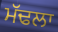
ਮੱਢਲਾ